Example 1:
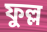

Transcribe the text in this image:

ফুল্ল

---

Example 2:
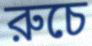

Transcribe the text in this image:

রুচে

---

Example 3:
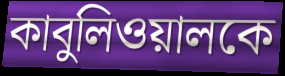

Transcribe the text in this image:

কাবুলিওয়ালকে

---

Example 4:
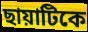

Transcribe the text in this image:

ছায়াটিকে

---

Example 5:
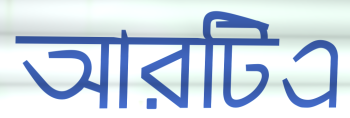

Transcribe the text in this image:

আরটিএ